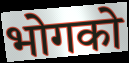
भोगको